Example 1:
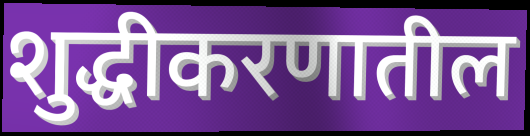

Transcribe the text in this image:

शुद्धीकरणातील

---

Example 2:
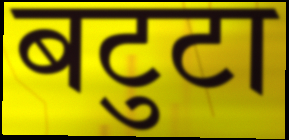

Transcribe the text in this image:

बटुटा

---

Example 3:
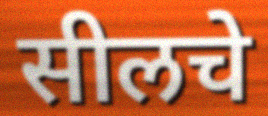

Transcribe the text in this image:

सीलचे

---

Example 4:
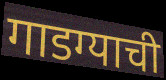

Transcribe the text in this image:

गाडग्याची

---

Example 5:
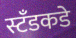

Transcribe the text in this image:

स्टॅंडकडे